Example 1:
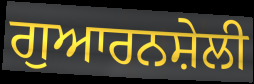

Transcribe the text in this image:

ਗੁਆਰਨਸ਼ੇਲੀ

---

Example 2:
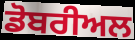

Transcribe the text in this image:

ਡੋਬਰੀਅਲ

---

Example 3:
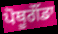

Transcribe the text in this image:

ਪੋਥੂਗੌਂਡਾ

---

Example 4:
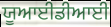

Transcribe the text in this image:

ਯੂਆਈਡੀਆਈ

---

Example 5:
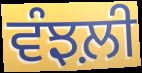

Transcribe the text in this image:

ਵੰਝਲ਼ੀ